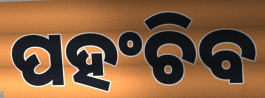
ପହଂଚିବ